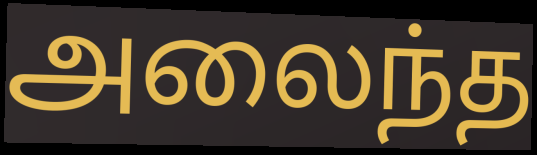
அலைந்த